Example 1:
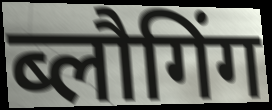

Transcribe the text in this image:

ब्लौगिंग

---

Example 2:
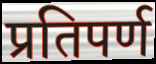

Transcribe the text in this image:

प्रतिपर्ण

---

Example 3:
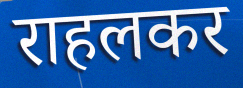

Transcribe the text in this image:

राहलकर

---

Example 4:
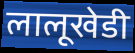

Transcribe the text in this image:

लालूखेडी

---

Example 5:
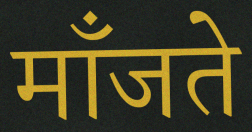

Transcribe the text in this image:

माँजते